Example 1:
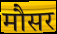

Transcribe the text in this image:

मौसर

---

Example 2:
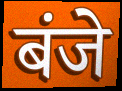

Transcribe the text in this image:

बंजे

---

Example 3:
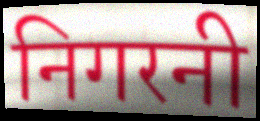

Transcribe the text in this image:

निगरनी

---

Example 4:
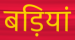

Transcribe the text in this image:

बड़ियां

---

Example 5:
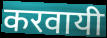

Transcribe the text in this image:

करवायी